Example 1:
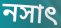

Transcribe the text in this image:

নসাৎ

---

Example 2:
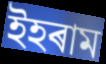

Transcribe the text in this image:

ইহৰাম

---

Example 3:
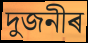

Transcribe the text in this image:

দুজনীৰ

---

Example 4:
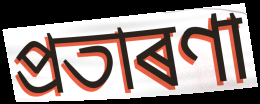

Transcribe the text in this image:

প্ৰতাৰণা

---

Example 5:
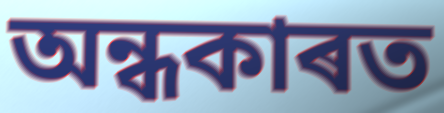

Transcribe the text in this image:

অন্ধকাৰত